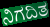
ನಿಗದಿತ